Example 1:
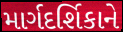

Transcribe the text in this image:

માર્ગદર્શિકાને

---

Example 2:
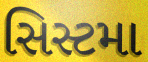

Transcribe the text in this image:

સિસ્ટમા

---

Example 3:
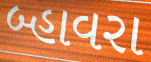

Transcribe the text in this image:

બ્હાવરા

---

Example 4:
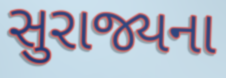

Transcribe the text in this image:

સુરાજ્યના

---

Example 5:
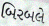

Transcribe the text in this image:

બિરબલે